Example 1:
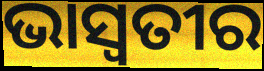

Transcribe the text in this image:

ଭାସ୍ଵତୀର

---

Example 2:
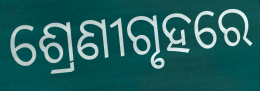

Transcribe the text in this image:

ଶ୍ରେଣୀଗୃହରେ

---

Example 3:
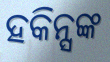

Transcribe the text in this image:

ହକିନ୍ସଙ୍କ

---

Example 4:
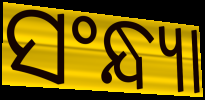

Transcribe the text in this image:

ସଂନ୍ଧ୍ଯା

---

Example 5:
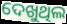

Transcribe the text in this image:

ଦେଖୁଥିଲ